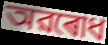
অৱৰোধ